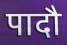
पादौ